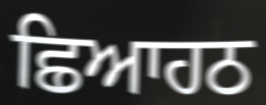
ਛਿਆਹਠ